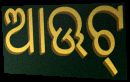
ଆଊଟ୍